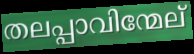
തലപ്പാവിന്മേല്